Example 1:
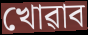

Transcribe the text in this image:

খোৱাব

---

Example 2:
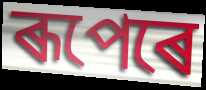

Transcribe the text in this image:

ৰূপেৰে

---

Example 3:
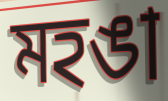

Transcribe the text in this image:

মহঙা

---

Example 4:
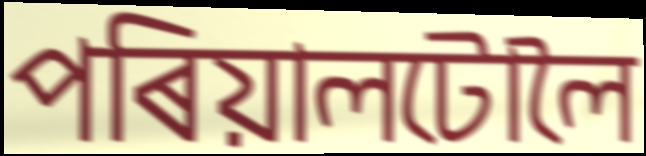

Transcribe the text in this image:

পৰিয়ালটোলৈ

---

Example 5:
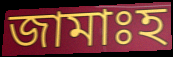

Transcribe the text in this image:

জামাঃহ